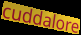
cuddalore